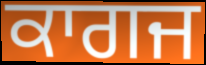
ਕਾਗਜ